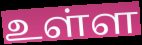
உள்ள